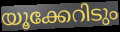
യൂക്കേറിടും